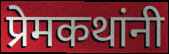
प्रेमकथांनी